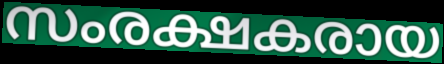
സംരക്ഷകരായ